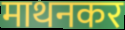
माथनकर